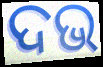
ଦଭ